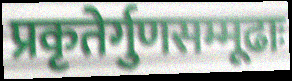
प्रकृतेर्गुणसम्मूढाः